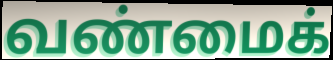
வண்மைக்